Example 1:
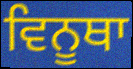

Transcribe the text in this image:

ਵਿਨੂਥਾ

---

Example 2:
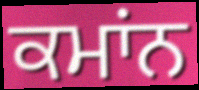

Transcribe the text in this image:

ਕਮਾਂਨ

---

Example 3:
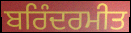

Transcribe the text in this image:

ਬਰਿੰਦਰਮੀਤ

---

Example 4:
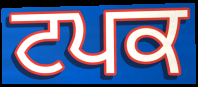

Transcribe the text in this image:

ਟਪਕ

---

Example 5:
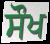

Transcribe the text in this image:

ਸੌਖ